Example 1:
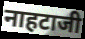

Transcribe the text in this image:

नाहटाजी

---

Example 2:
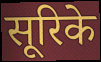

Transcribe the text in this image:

सूरिके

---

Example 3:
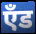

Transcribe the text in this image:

एँड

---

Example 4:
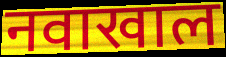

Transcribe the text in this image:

नवाखाल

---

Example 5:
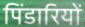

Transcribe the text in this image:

पिंडारियों